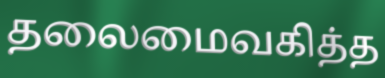
தலைமைவகித்த